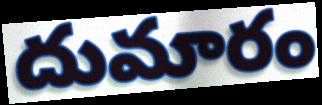
దుమారం